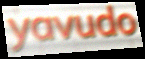
yavudo